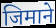
जिमाने